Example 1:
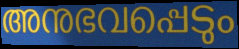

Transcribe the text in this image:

അനുഭവപ്പെടും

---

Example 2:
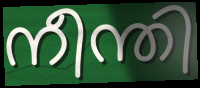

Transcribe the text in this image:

നീന്തി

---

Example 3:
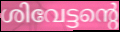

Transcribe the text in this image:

ശിവേട്ടന്റെ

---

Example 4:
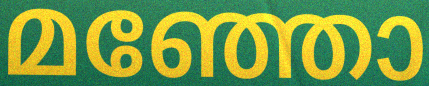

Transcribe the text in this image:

മഞ്ഞോ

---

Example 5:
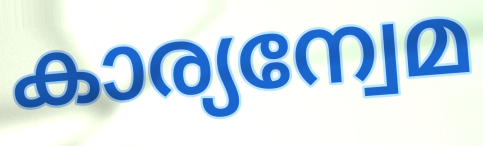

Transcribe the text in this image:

കാര്യന്വേമ